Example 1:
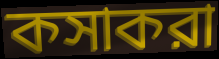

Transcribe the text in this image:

কসাকরা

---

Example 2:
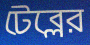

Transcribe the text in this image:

টেব্লের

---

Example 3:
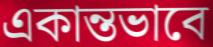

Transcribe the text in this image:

একান্তভাবে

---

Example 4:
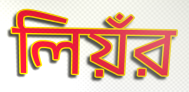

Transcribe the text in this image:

লিয়ঁর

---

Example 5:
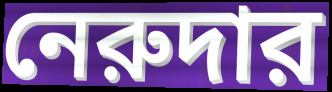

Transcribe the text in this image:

নেরুদার